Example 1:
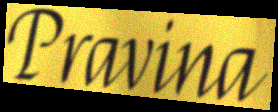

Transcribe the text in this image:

Pravina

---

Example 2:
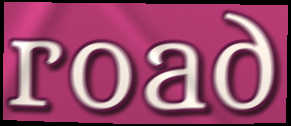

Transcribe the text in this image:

road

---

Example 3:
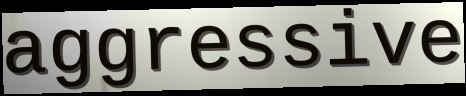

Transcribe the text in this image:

aggressive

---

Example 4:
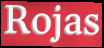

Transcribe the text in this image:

Rojas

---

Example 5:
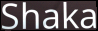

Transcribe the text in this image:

Shaka